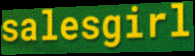
salesgirl